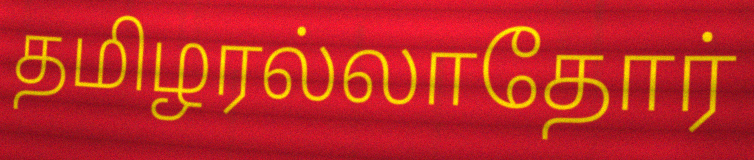
தமிழரல்லாதோர்